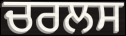
ਚਰਲਸ